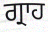
ਗ੍ਰਾਹ